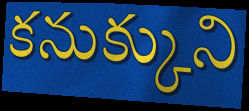
కనుక్కుని